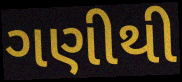
ગણીથી